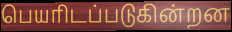
பெயரிடப்படுகின்றன